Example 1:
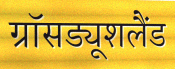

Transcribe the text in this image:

ग्रॉसड्यूशलैंड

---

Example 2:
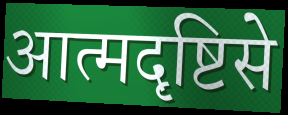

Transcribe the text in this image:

आत्मदृष्टिसे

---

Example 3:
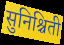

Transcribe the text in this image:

सुनिश्चिती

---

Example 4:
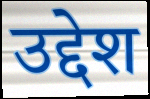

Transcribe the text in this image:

उद्देश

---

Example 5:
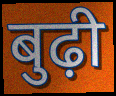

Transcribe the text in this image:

बुढ़ी